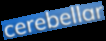
cerebellar